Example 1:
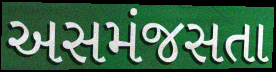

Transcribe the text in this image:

અસમંજસતા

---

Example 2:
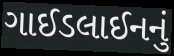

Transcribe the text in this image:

ગાઈડલાઈનનું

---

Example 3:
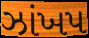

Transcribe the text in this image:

ઝાંખપ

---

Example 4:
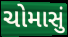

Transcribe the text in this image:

ચોમાસું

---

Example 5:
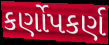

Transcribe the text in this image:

કર્ણોપકર્ણ